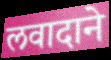
लवादाने